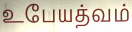
உபேயத்வம்